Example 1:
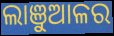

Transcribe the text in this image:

ଲାଞୁଆଳର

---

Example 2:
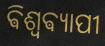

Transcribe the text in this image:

ଵିଶ୍ଵଵ୍ୟାପୀ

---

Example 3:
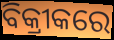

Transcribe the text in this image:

ବିକ୍ରୀକରେ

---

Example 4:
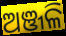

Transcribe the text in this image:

ଅଞ୍ଜଳି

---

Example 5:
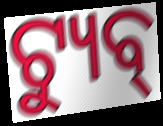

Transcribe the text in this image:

ଟ୍ୟୁବ୍